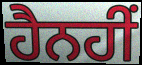
ਹੈਨਹੀਂ